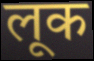
लूक